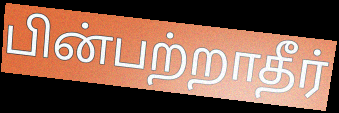
பின்பற்றாதீர்